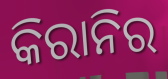
କିରାନିର